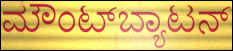
ಮೌಂಟ್‌ಬ್ಯಾಟನ್